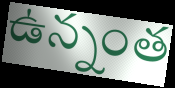
ఉన్నంత